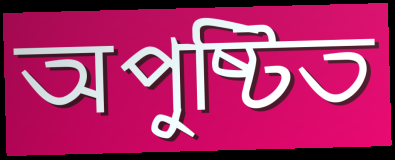
অপুষ্টিত